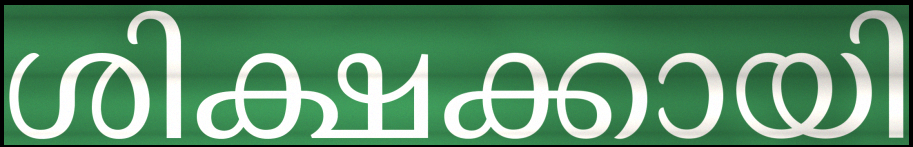
ശിക്ഷക്കായി